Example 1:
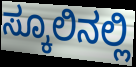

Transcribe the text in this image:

ಸ್ಕೂಲಿನಲ್ಲಿ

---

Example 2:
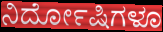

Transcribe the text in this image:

ನಿರ್ದೋಷಿಗಳೂ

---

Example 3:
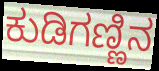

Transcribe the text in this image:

ಕುಡಿಗಣ್ಣಿನ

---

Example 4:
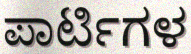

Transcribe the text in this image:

ಪಾರ್ಟಿಗಳ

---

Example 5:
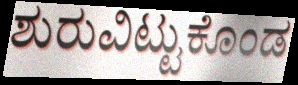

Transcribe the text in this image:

ಶುರುವಿಟ್ಟುಕೊಂಡ